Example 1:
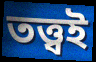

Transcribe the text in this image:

তত্ত্বই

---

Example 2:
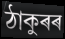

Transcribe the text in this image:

ঠাকুৰৰ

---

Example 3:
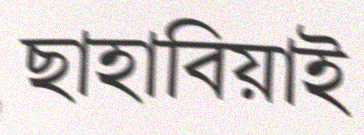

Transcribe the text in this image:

ছাহাবিয়াই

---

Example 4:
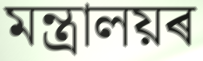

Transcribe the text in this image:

মন্ত্ৰালয়ৰ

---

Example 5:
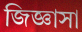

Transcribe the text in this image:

জিজ্ঞাসা